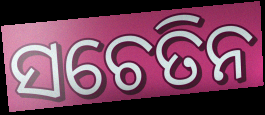
ସଚେତିନ